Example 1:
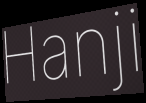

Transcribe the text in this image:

Hanji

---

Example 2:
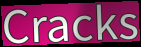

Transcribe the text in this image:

Cracks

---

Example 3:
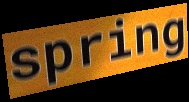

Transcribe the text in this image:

spring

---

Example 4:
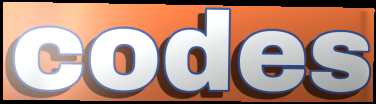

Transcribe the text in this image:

codes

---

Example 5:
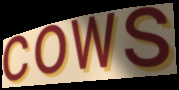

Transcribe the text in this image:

cows